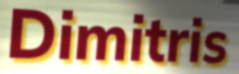
Dimitris